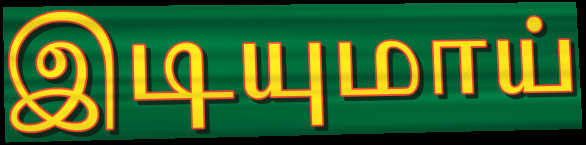
இடியுமாய்